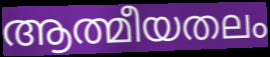
ആത്മീയതലം